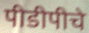
पीडीपीचे